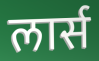
लार्स